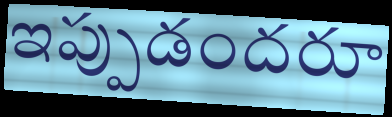
ఇప్పుడందరూ